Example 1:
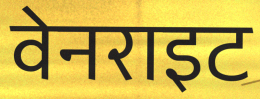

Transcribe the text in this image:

वेनराइट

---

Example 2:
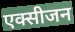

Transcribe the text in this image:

एक्सीजन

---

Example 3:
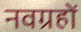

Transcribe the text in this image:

नवग्रहों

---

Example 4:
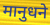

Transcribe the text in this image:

मानुधने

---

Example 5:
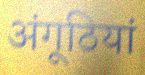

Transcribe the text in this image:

अंगूठियां